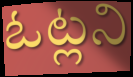
ఓట్లని